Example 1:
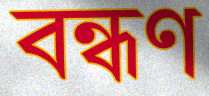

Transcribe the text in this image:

বন্ধণ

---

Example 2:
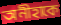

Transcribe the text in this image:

অনীহাকে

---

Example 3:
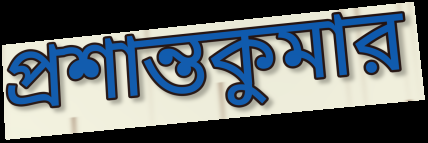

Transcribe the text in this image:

প্রশান্তকুমার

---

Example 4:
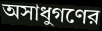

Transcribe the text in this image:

অসাধুগণের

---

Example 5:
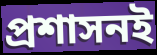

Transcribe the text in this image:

প্রশাসনই